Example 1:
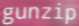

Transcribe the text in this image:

gunzip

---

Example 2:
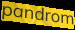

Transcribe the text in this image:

pandrom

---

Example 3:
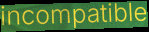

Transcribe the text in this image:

incompatible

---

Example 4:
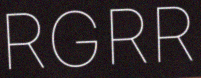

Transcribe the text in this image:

RGRR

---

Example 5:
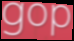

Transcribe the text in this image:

gop